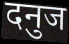
दनुज